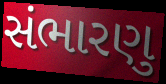
સંભારણુ